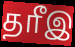
தரீஇ